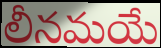
లీనమయే